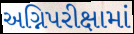
અગ્નિપરીક્ષામાં